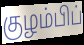
குழம்பிப்